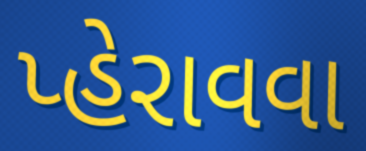
પ્હેરાવવા